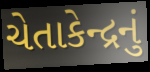
ચેતાકેન્દ્રનું